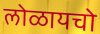
लोळायचो